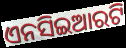
ଏନସିଇଆରଟି